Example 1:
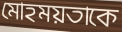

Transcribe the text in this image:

মোহময়তাকে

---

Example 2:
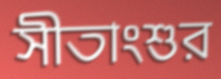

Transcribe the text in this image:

সীতাংশুর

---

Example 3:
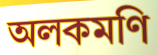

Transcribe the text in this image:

অলকমণি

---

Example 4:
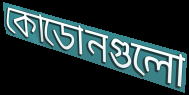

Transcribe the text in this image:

কোডোনগুলো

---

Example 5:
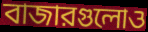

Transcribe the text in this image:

বাজারগুলোও